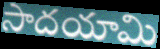
సాదయామి